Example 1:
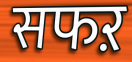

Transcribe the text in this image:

सफऱ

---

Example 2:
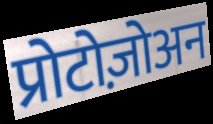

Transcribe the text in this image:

प्रोटोज़ोअन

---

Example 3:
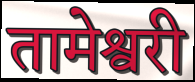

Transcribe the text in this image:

तामेश्वरी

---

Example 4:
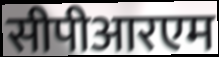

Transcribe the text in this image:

सीपीआरएम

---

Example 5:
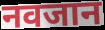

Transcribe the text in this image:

नवजान